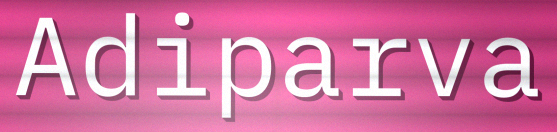
Adiparva